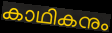
കാഥികനും